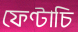
ফেণ্টাচি